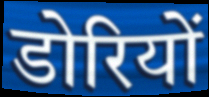
डोरियों